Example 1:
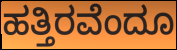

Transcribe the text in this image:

ಹತ್ತಿರವೆಂದೂ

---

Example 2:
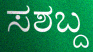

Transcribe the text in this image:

ಸಶಬ್ದ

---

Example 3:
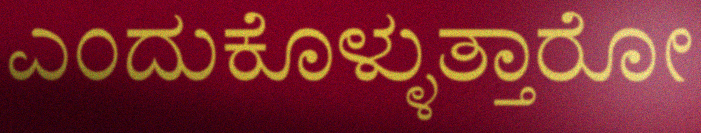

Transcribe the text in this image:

ಎಂದುಕೊಳ್ಳುತ್ತಾರೋ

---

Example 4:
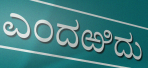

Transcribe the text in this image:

ಎಂದಱಿದು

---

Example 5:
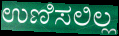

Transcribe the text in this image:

ಉಣಿಸಲಿಲ್ಲ